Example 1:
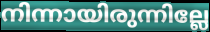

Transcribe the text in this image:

നിന്നായിരുന്നില്ലേ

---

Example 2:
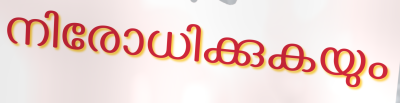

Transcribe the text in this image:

നിരോധിക്കുകയും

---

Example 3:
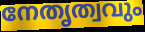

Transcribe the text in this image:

നേതൃത്വവും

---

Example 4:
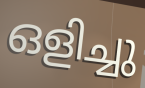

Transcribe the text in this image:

ഒളിച്ചു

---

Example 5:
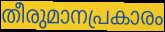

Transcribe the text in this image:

തീരുമാനപ്രകാരം